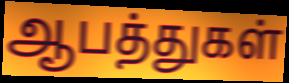
ஆபத்துகள்